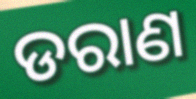
ଡରାଣ